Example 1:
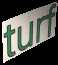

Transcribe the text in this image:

turf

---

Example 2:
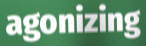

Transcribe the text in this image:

agonizing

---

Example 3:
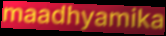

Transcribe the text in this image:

maadhyamika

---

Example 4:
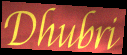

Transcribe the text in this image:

Dhubri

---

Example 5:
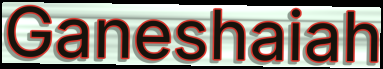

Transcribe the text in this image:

Ganeshaiah